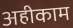
अहीकाम